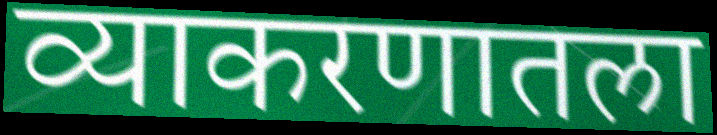
व्याकरणातला